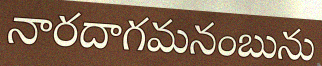
నారదాగమనంబును